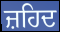
ਜ਼ਹਿਦ